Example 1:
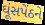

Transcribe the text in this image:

ઘૂંસપેંઠને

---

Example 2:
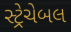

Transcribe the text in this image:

સ્ટ્રેચેબલ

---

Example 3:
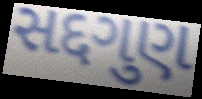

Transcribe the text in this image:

સદ્દગુણ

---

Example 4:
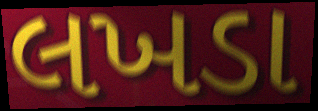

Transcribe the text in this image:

લખડા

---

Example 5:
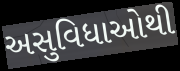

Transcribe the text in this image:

અસુવિધાઓથી